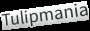
Tulipmania